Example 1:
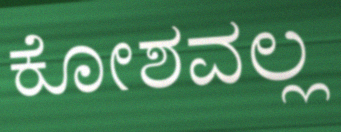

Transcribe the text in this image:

ಕೋಶವಲ್ಲ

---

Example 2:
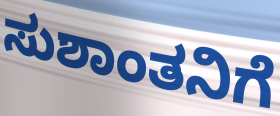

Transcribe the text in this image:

ಸುಶಾಂತನಿಗೆ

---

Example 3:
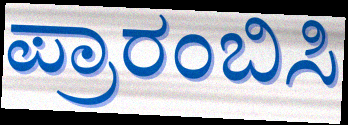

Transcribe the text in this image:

ಪ್ರಾರಂಬಿಸಿ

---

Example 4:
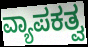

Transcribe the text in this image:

ವ್ಯಾಪಕತ್ವ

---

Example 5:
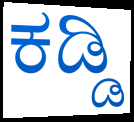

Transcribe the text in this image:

ಕಡ್ಡಿ